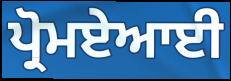
ਪ੍ਰੋਮਏਆਈ